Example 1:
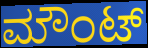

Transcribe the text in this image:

ಮೌಂಟ್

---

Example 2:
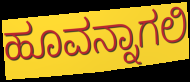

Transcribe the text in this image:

ಹೂವನ್ನಾಗಲಿ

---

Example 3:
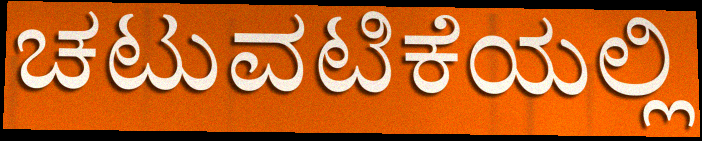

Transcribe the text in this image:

ಚಟುವಟಿಕೆಯಲ್ಲಿ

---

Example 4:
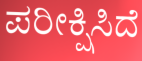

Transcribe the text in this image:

ಪರೀಕ್ಷಿಸಿದೆ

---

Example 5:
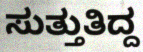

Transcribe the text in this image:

ಸುತ್ತುತಿದ್ದ